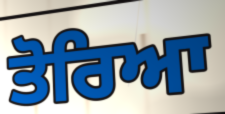
ਤੋਰਿਆ